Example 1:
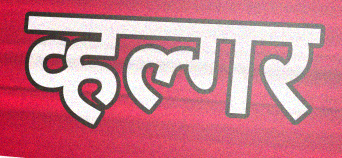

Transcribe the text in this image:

व्हल्गर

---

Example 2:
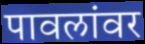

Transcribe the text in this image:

पावलांवर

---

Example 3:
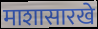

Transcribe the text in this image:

माशासारखे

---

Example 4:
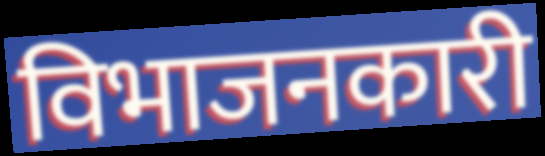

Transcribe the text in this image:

विभाजनकारी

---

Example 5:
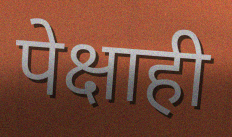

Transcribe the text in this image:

पेक्षाही